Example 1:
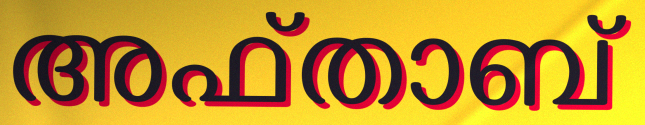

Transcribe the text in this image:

അഫ്താബ്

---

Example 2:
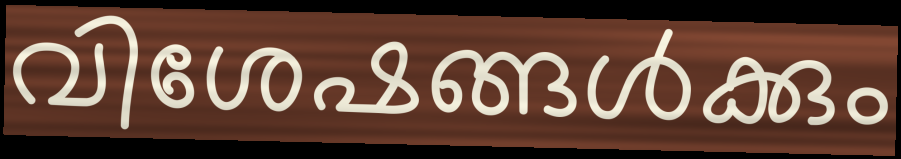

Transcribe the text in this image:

വിശേഷങ്ങൾക്കും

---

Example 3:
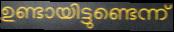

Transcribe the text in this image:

ഉണ്ടായിട്ടുണ്ടെന്ന്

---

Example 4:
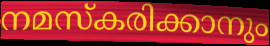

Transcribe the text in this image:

നമസ്കരിക്കാനും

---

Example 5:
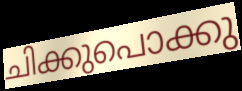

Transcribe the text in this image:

ചിക്കുപൊക്കു